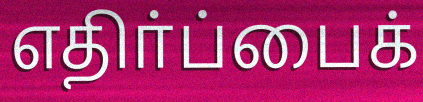
எதிர்ப்பைக்